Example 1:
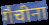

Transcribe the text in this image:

गैचीना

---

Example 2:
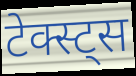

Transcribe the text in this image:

टेक्स्ट्स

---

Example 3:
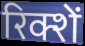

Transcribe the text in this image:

रिक्शें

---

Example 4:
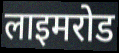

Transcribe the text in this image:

लाइमरोड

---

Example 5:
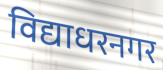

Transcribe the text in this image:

विद्याधरनगर